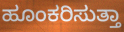
ಹೂಂಕರಿಸುತ್ತಾ